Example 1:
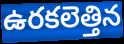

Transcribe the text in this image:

ఉరకలెత్తిన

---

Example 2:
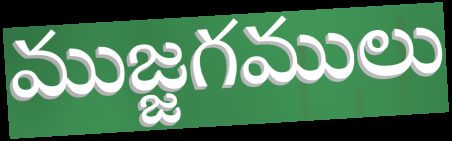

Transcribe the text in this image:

ముజ్జగములు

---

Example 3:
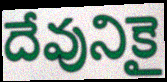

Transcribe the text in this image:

దేవునికై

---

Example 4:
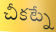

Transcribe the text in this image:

చీకట్నే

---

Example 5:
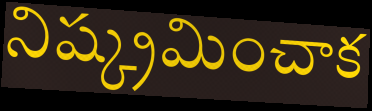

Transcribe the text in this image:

నిష్క్రమించాక